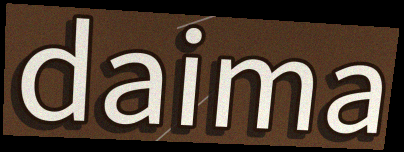
daima